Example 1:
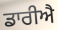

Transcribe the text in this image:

ਡਾਰੀਐ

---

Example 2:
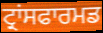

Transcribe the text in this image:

ਟ੍ਰਾਂਸਫਾਰਮਡ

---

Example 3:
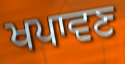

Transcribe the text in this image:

ਖਪਾਵਣ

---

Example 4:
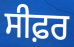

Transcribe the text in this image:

ਸੀਫ਼ਰ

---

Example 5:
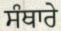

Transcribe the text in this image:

ਸੰਥਾਰੇ